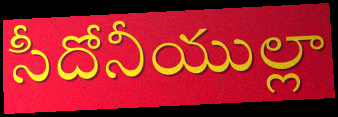
సీదోనీయుల్లా